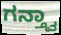
ಗನ್ತ್ವಾ